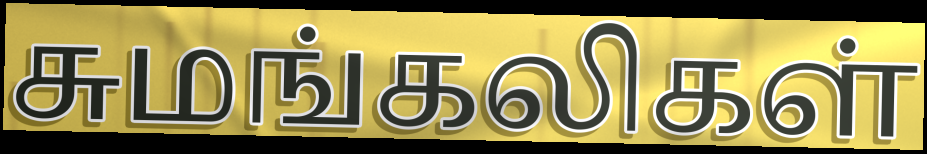
சுமங்கலிகள்